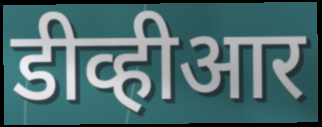
डीव्हीआर